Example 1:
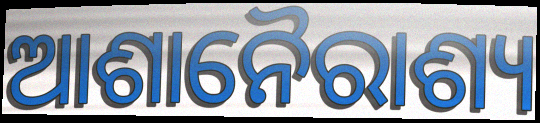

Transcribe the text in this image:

ଆଶାନୈରାଶ୍ୟ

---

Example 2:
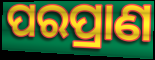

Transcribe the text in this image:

ପରପ୍ରାଣ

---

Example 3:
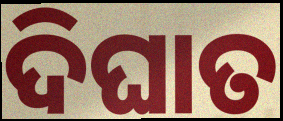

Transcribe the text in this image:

ଦିଘାତ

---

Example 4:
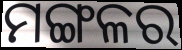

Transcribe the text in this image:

ମଙ୍ଗଳର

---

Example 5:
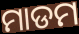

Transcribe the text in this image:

ମାଡମ